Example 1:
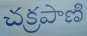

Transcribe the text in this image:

చక్రపాణి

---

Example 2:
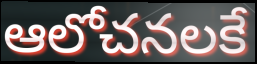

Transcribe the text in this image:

ఆలోచనలకే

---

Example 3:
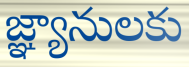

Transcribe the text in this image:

జ్ఞ్యానులకు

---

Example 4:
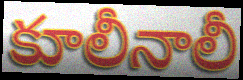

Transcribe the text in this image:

కూలీనాలీ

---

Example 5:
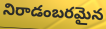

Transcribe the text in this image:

నిరాడంబరమైన